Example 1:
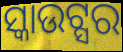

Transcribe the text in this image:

ସ୍କାଉଟ୍ସର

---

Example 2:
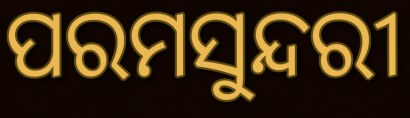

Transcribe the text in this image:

ପରମସୁନ୍ଦରୀ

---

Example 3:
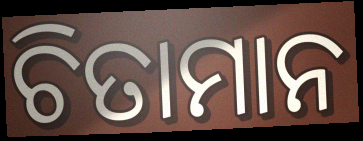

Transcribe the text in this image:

ଚିତାମାନ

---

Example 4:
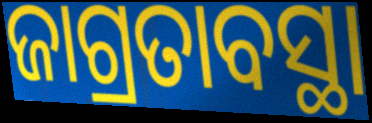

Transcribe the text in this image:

ଜାଗ୍ରତାବସ୍ଥା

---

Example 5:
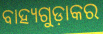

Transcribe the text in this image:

ବାହ୍ୟଗୁଡ଼ାକର